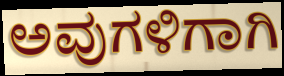
ಅವುಗಳಿಗಾಗಿ